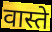
वास्ते